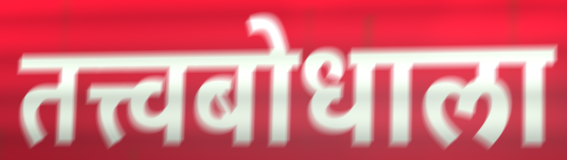
तत्त्वबोधाला